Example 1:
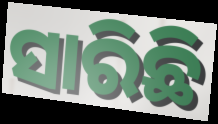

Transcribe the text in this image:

ସାରିଛି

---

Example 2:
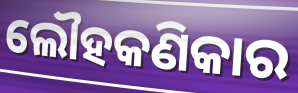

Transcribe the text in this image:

ଲୌହକଣିକାର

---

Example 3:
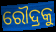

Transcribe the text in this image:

ରୌଦ୍ରକୁ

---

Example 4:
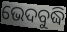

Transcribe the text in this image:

ଭେଦବୁଦ୍ଧି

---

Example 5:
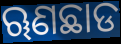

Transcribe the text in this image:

ୠଣଛାଡ